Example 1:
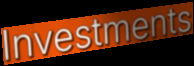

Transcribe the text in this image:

Investments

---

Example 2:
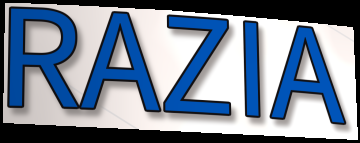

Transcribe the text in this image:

RAZIA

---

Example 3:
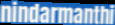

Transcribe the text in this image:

nindarmanthi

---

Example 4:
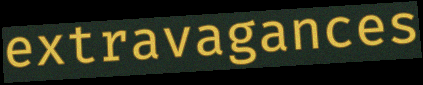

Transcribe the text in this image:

extravagances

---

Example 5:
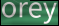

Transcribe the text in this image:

orey